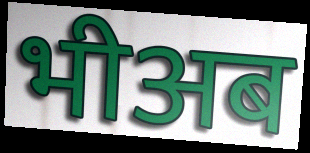
भीअब